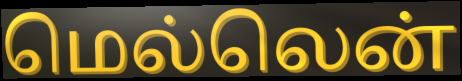
மெல்லென்